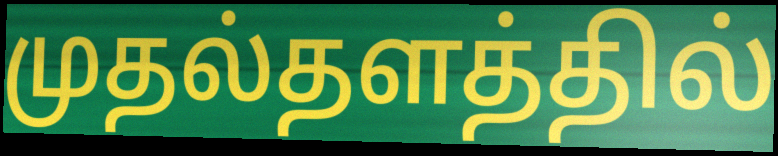
முதல்தளத்தில்